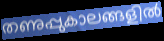
തണുപ്പുകാലങ്ങളിൽ